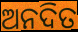
ଅନଦିତ